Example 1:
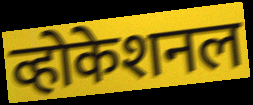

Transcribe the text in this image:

व्होकेशनल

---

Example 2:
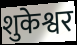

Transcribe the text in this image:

शुकेश्वर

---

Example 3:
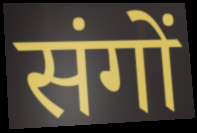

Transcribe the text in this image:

संगों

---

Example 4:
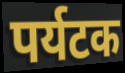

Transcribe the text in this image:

पर्यटक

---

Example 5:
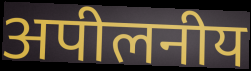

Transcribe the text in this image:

अपीलनीय